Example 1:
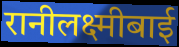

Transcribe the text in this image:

रानीलक्ष्मीबाई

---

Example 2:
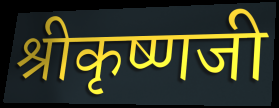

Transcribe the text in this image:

श्रीकृष्णजी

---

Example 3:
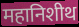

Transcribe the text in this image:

महानिशीथ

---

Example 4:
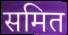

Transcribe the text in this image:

समित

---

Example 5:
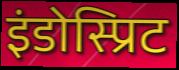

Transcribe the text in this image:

इंडोस्प्रिट